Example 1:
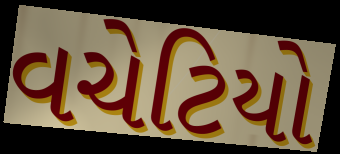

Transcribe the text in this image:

વચેટિયો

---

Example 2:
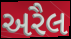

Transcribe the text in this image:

અરૈલ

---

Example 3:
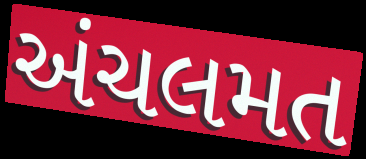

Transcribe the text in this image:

અંચલમત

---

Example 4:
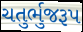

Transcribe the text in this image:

ચતુર્ભુજરૂપ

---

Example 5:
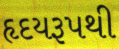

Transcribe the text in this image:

હૃદયરૂપથી